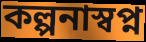
কল্পনাস্বপ্ন